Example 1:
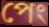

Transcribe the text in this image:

পেং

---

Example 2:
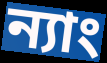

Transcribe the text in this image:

ন্যাং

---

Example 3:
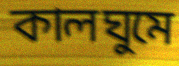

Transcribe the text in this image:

কালঘুমে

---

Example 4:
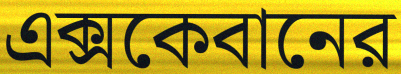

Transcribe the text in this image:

এক্সকেবানের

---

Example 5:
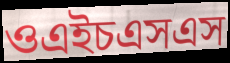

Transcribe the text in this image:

ওএইচএসএস